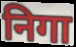
निगा